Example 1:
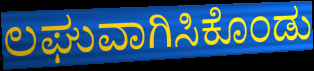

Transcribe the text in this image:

ಲಘುವಾಗಿಸಿಕೊಂಡು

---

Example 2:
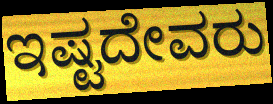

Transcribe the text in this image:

ಇಷ್ಟದೇವರು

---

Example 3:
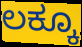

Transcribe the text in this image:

ಲಕ್ಕೂ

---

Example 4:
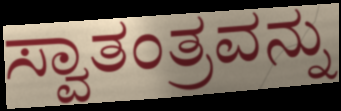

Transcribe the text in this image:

ಸ್ವಾತಂತ್ರವನ್ನು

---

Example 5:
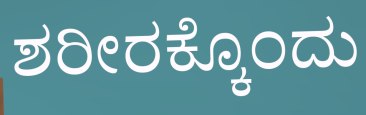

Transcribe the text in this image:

ಶರೀರಕ್ಕೊಂದು